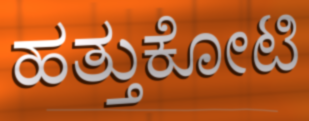
ಹತ್ತುಕೋಟಿ